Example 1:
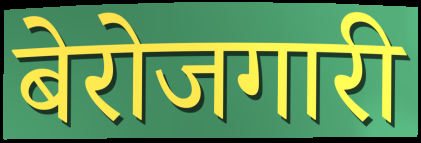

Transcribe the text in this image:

बेरोजगारी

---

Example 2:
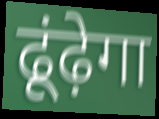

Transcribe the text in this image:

ढूंढ़ेगा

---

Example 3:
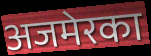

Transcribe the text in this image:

अजमेरका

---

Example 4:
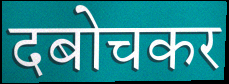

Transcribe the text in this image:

दबोचकर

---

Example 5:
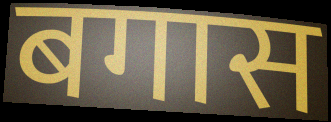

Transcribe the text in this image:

बगास